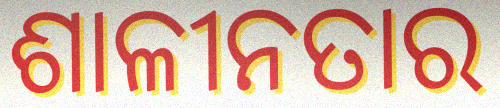
ଶାଳୀନତାର